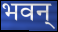
भवन्